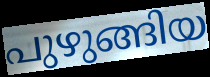
പുഴുങ്ങിയ